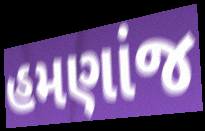
હમણાંજ